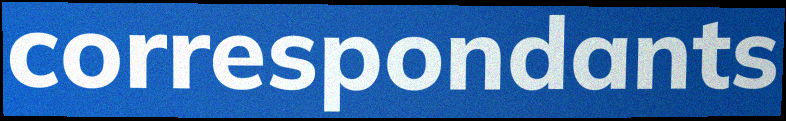
correspondants